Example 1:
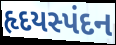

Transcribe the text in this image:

હૃદયસ્પંદન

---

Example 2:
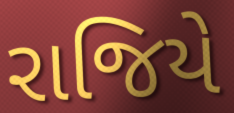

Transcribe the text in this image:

રાજિયે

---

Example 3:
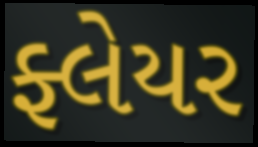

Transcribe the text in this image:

ફ્લેયર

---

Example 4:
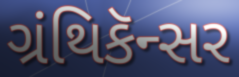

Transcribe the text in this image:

ગ્રંથિકૅન્સર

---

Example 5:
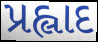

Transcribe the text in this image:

પ્રહ્લાદ